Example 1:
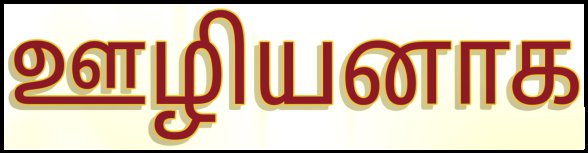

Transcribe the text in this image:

ஊழியனாக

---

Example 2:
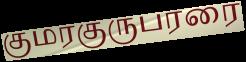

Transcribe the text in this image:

குமரகுருபரரை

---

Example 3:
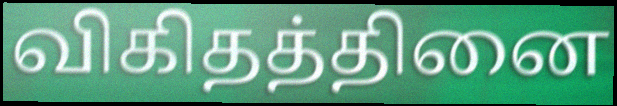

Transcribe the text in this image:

விகிதத்தினை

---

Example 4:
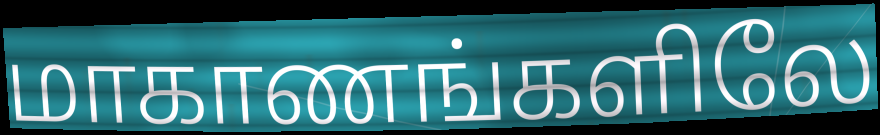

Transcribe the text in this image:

மாகாணங்களிலே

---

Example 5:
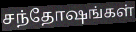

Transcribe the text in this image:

சந்தோஷங்கள்